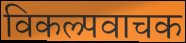
विकल्पवाचक